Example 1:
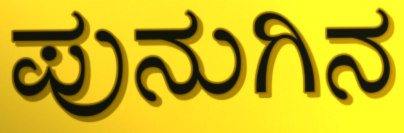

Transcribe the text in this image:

ಪುನುಗಿನ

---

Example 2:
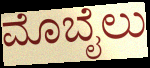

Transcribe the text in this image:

ಮೊಬೈಲು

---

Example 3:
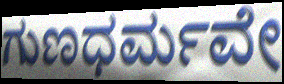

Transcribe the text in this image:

ಗುಣಧರ್ಮವೇ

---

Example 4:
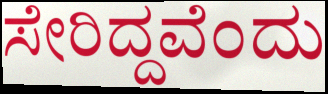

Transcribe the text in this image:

ಸೇರಿದ್ದವೆಂದು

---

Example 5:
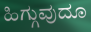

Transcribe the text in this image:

ಹಿಗ್ಗುವುದೂ